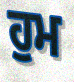
ਹੁਮ